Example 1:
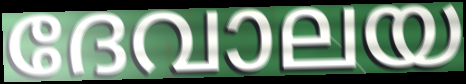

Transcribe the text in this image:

ദേവാലയ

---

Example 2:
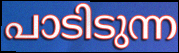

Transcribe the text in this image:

പാടിടുന്ന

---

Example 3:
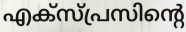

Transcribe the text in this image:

എക്സ്പ്രസിന്റെ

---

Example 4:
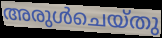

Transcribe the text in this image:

അരുൾചെയ്തു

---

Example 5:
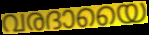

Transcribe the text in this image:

വരദായൈ